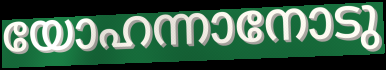
യോഹന്നാനോടു